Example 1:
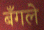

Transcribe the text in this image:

बँगले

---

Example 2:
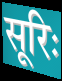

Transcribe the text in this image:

सूरिः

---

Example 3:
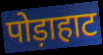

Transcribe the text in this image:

पोड़ाहाट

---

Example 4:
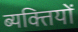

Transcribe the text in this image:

ब्यक्तियों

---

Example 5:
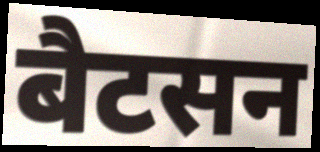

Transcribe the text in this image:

बैटसन